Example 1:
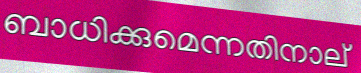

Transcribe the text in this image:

ബാധിക്കുമെന്നതിനാല്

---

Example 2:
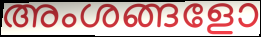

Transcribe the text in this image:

അംശങ്ങളോ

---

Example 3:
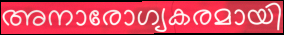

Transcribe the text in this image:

അനാരോഗ്യകരമായി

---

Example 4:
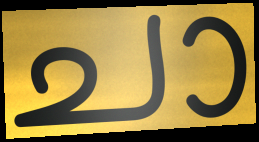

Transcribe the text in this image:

ചാ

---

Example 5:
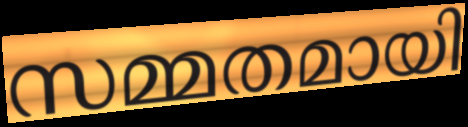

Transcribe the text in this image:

സമ്മതമായി